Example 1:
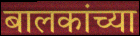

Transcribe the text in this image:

बालकांच्या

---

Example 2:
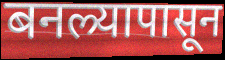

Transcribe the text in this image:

बनल्यापासून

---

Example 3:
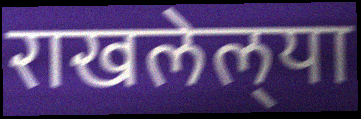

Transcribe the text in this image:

राखलेल्या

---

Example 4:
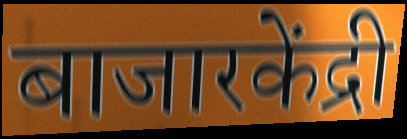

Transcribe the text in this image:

बाजारकेंद्री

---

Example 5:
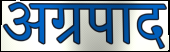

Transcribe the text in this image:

अग्रपाद